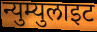
न्युम्युलाइट